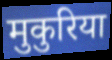
मुकुरिया